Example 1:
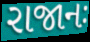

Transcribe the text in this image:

રાજાનઃ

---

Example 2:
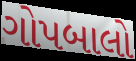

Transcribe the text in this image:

ગોપબાલો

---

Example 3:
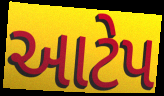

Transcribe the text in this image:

આટેપ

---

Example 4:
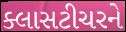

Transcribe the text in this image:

ક્લાસટીચરને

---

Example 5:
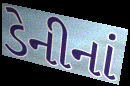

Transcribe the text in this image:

ડેનીનાં